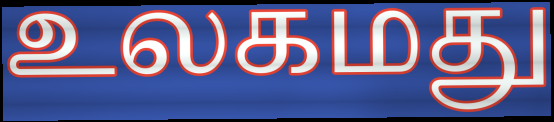
உலகமது